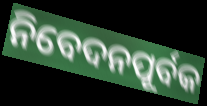
ନିବେଦନପୂର୍ବକ